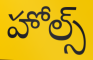
హోల్స్